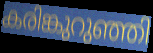
കരിങ്കുറുഞ്ഞി